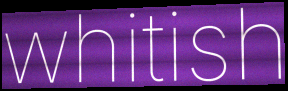
whitish